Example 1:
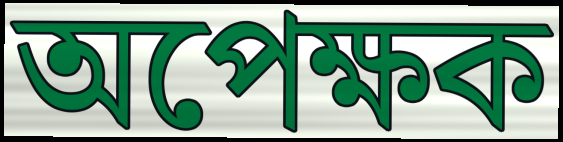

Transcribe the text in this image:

অপেক্ষক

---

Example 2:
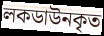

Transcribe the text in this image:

লকডাউনকৃত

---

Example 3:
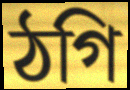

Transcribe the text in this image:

ঠগি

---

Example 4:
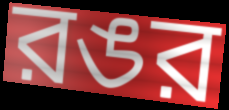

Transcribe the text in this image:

রঙর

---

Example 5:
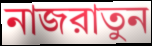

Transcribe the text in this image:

নাজরাতুন